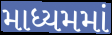
માધ્યમમાં